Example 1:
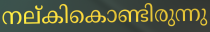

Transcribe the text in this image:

നല്കികൊണ്ടിരുന്നു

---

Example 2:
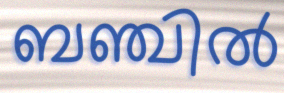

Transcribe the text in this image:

ബഞ്ചിൽ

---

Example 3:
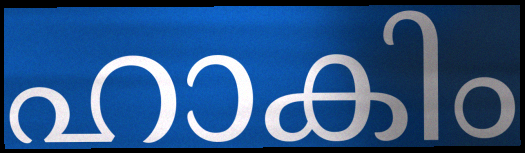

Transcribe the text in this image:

ഹാകിം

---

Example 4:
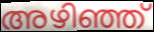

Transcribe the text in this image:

അഴിഞ്ഞ്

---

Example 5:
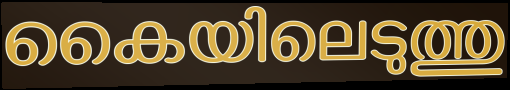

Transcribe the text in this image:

കൈയിലെടുത്തു